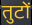
तुटों